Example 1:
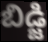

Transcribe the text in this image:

బిడ్జి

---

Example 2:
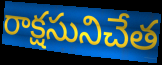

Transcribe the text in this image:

రాక్షసునిచేత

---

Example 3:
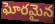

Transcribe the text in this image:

ఘోరమైన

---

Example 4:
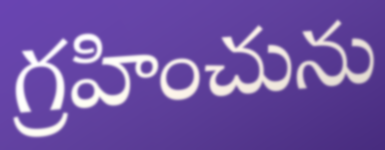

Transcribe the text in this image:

గ్రహించును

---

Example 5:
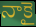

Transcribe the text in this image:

నాకై